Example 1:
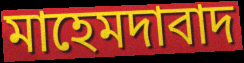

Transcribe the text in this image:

মাহেমদাবাদ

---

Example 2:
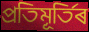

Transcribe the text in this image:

প্ৰতিমূৰ্তিৰ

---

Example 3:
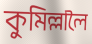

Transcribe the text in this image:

কুমিল্লালৈ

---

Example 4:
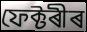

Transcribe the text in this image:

ফেক্টৰীৰ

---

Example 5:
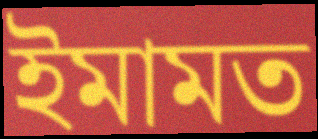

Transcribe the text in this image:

ইমামত